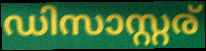
ഡിസാസ്റ്റര്